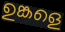
ഉങ്കളെ